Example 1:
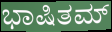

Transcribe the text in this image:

ಭಾಷಿತಮ್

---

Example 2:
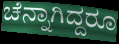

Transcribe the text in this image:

ಚೆನ್ನಾಗಿದ್ದರೂ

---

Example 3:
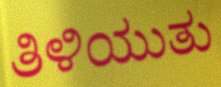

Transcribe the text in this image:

ತಿಳಿಯುತು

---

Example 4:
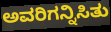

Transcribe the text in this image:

ಅವರಿಗನ್ನಿಸಿತು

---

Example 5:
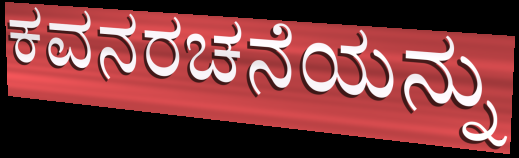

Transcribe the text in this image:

ಕವನರಚನೆಯನ್ನು